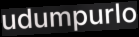
udumpurlo